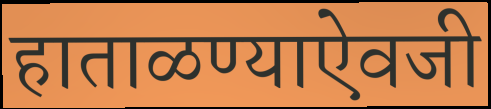
हाताळण्याऐवजी